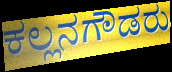
ಕಲ್ಲನಗೌಡರು